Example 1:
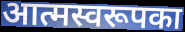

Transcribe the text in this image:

आत्मस्वरूपका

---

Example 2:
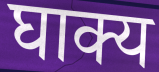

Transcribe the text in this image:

घाक्य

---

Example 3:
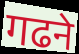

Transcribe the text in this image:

गढने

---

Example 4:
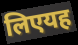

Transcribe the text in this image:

लिएयह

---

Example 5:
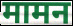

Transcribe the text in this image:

मामन